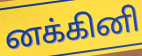
னக்கினி